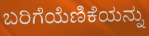
ಬರಿಗೆಯೆಣಿಕೆಯನ್ನು